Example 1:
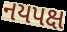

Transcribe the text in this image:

નયપક્ષ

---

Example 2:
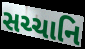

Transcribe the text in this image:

સચ્ચાનિ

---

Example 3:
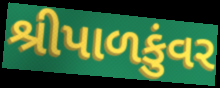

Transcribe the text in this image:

શ્રીપાળકુંવર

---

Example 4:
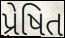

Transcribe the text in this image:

પ્રેષિત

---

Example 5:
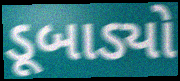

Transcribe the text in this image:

ડૂબાડ્યો